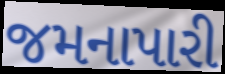
જમનાપારી